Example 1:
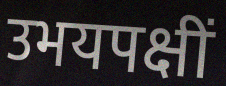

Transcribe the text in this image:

उभयपक्षीं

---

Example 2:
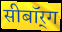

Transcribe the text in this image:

सीबॉर्ग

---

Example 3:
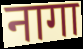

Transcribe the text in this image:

नागा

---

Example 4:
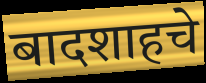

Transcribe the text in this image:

बादशाहचे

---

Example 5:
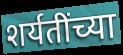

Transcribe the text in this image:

शर्यतींच्या